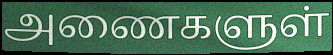
அணைகளுள்